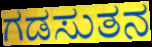
ಗಡಸುತನ